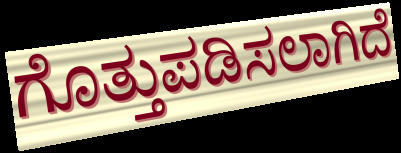
ಗೊತ್ತುಪಡಿಸಲಾಗಿದೆ